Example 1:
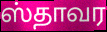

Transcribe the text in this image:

ஸ்தாவர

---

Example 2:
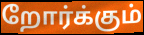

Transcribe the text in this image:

றோர்க்கும்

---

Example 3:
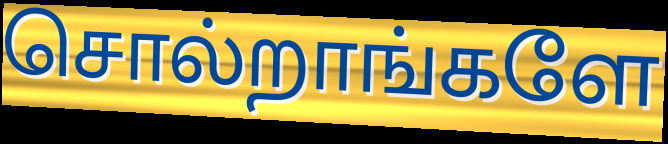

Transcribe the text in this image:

சொல்றாங்களே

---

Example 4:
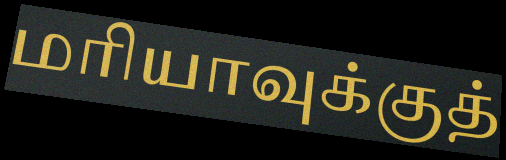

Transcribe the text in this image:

மரியாவுக்குத்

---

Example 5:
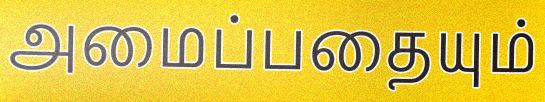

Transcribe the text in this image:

அமைப்பதையும்